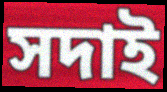
সদাই